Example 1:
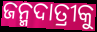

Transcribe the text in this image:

ଜନ୍ମଦାତ୍ରୀକୁ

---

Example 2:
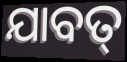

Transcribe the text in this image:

ଯାବତ୍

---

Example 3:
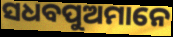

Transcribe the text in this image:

ସଧବପୁଅମାନେ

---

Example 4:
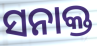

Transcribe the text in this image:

ସନାକ୍ତ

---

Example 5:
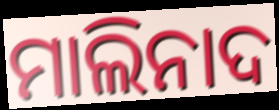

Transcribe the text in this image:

ମାଲିନାଦ